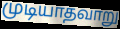
முடியாதவாறு